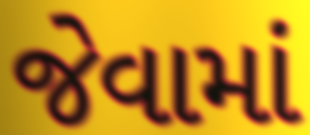
જેવામાં